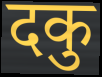
दकु